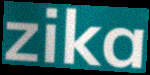
zika